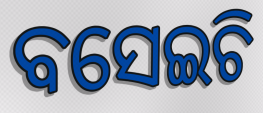
ବସେଇଚି